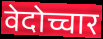
वेदोच्चार